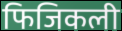
फिजिकली